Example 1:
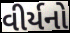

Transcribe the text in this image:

વીર્યનો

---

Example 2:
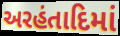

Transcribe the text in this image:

અરહંતાદિમાં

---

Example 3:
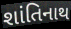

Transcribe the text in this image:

શાંતિનાથ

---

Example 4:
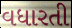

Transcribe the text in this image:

વધારતી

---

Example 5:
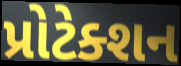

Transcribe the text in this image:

પ્રોટેક્શન